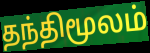
தந்திமூலம்